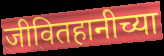
जीवितहानीच्या